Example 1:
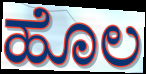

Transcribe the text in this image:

ಹೊಲ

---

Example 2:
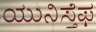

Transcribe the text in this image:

ಯುನಿಸ್ತೆಫ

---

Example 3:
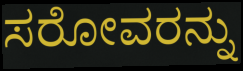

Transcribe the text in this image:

ಸರೋವರನ್ನು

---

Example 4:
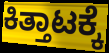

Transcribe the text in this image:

ಕಿತ್ತಾಟಕ್ಕೆ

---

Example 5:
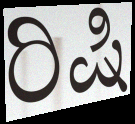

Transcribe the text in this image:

ರಿಷಿ